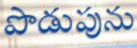
పొడుపును